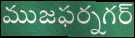
ముజఫర్నగర్